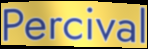
Percival